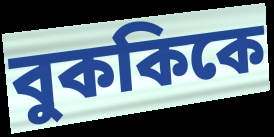
বুককিকে